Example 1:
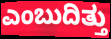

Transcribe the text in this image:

ಎಂಬುದಿತ್ತು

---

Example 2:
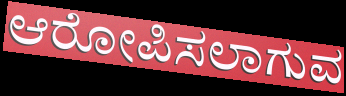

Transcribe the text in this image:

ಆರೋಪಿಸಲಾಗುವ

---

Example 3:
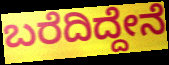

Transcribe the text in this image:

ಬರೆದಿದ್ದೇನೆ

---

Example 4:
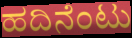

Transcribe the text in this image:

ಹದಿನೆಂಟು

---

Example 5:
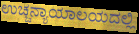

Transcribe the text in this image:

ಉಚ್ಚನ್ಯಾಯಾಲಯದಲ್ಲಿ